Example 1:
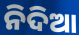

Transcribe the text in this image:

ନିଦିଆ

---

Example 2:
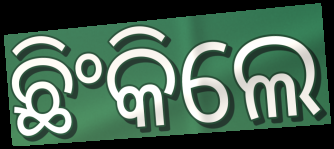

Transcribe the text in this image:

ଛିଂକିଲେ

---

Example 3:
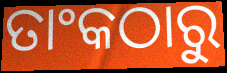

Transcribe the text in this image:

ତାଂକଠାରୁ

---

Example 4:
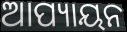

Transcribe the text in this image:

ଆପ୍ୟାୟନ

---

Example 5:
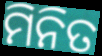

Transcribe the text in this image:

ମିନିତ